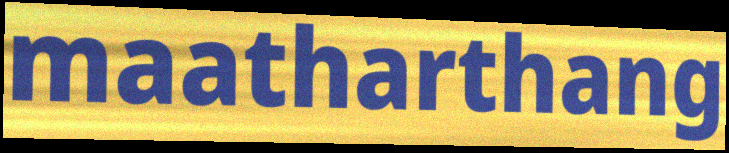
maatharthang